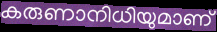
കരുണാനിധിയുമാണ്